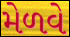
મેળવે